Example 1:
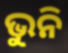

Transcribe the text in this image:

ଭୁନି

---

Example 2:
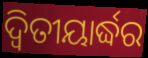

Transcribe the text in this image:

ଦ୍ୱିତୀୟାର୍ଦ୍ଧର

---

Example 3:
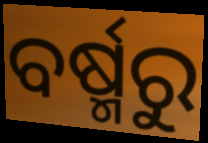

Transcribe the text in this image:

ବର୍ଷ୍ମରୁ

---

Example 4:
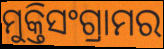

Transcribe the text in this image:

ମୁକ୍ତିସଂଗ୍ରାମର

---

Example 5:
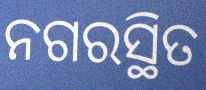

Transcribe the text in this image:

ନଗରସ୍ଥିତ